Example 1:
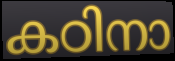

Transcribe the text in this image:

കഠിനാ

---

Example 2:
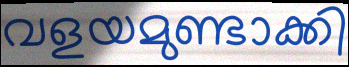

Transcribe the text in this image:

വളയമുണ്ടാക്കി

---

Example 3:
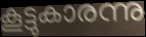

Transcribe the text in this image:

കൂട്ടുകാരന്നു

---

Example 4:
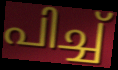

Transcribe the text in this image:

പിച്ച്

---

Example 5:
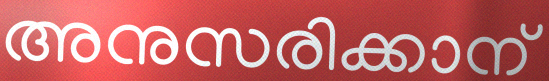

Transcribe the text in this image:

അനുസരിക്കാന്